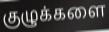
குழுக்களை